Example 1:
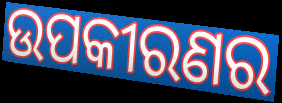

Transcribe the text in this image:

ଉପକୀରଣର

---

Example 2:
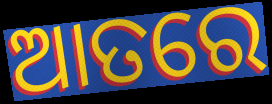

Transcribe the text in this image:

ଆତରେ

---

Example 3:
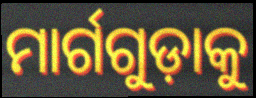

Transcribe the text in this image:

ମାର୍ଗଗୁଡ଼ାକୁ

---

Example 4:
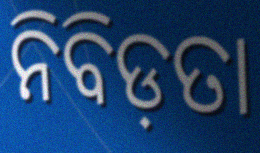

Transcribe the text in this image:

ନିବିଡ଼ତା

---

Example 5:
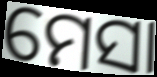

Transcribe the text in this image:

ମେସା